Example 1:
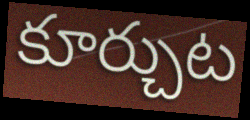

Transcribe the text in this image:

కూర్చుట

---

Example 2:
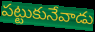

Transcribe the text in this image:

పట్టుకునేవాడు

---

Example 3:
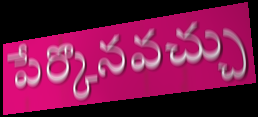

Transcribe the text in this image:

పేర్కొనవచ్చు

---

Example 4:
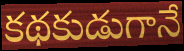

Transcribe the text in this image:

కథకుడుగానే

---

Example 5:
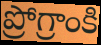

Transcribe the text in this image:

ప్రోగ్రాంకి